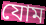
যোম